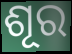
ଶୂର